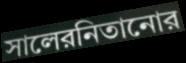
সালেরনিতানোর